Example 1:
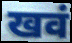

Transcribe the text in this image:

खवं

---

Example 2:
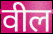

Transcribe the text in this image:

वील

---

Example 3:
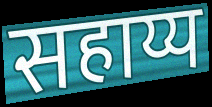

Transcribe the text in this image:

सहाय्य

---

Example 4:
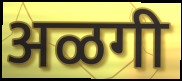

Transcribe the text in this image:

अळगी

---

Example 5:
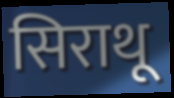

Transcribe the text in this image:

सिराथू